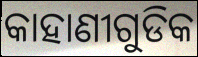
କାହାଣୀଗୁଡିକ